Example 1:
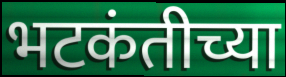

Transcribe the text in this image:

भटकंतीच्या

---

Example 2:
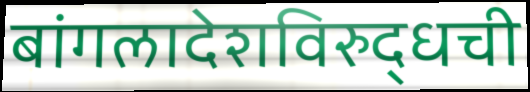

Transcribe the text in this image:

बांगलादेशविरुद्धची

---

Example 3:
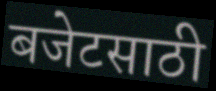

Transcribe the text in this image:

बजेटसाठी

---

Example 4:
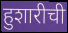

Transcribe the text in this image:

हुशारीची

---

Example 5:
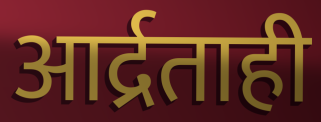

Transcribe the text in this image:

आर्द्रताही